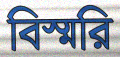
বিস্মরি